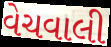
વેચવાલી